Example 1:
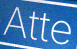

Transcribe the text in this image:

Atte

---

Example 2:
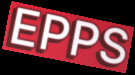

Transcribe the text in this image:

EPPS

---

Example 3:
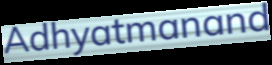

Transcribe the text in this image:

Adhyatmanand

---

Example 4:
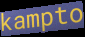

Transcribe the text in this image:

kampto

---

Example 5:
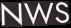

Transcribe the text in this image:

NWS